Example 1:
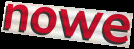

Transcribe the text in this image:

nowe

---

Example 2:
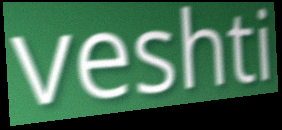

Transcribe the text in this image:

veshti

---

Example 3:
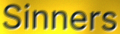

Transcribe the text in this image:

Sinners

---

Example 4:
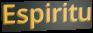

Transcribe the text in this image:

Espiritu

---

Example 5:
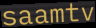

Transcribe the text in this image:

saamtv